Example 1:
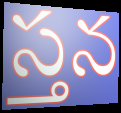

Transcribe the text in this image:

స్తన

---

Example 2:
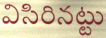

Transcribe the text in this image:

విసిరినట్టు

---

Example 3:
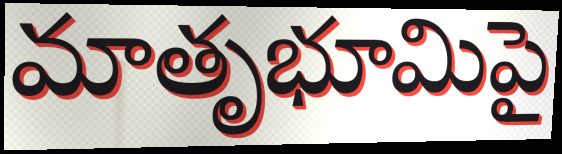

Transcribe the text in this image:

మాతృభూమిపై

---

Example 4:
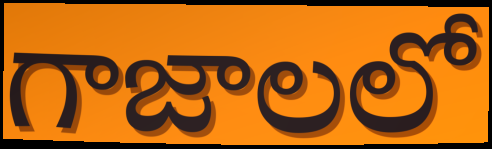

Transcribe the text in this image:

గాజాలలో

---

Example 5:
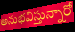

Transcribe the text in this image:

అనుభవిస్తున్నారో